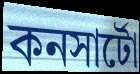
কনসার্টো